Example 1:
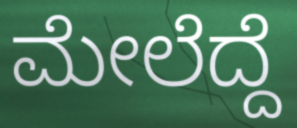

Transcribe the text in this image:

ಮೇಲೆದ್ದೆ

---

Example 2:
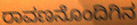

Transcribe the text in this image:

ರಾವಣನೊಂದಿಗಿನ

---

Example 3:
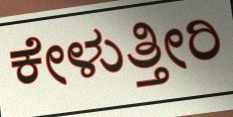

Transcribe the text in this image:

ಕೇಳುತ್ತೀರಿ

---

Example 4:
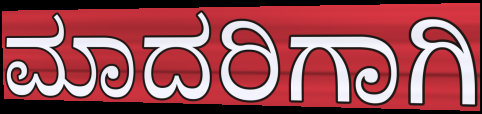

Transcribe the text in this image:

ಮಾದರಿಗಾಗಿ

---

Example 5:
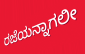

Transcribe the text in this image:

ರಜೆಯನ್ನಾಗಲೀ